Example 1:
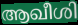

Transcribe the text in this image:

ആഖീശി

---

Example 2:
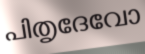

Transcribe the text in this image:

പിതൃദേവോ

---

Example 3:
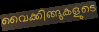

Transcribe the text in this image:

വൈക്കിങ്ങുകളുടെ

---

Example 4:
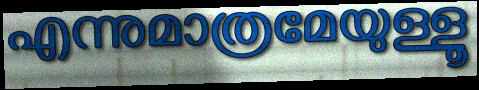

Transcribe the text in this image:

എന്നുമാത്രമേയുള്ളൂ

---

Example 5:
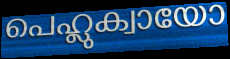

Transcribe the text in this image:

പെഹ്ലുക്വായോ